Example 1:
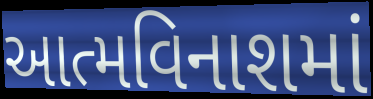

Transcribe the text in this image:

આત્મવિનાશમાં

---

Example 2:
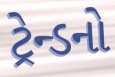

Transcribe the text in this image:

ટ્રેન્ડનો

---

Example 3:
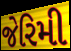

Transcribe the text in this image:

જેરિમી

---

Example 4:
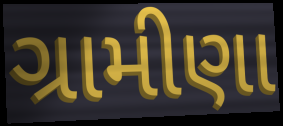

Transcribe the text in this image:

ગ્રામીણા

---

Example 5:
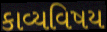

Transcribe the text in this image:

કાવ્યવિષય